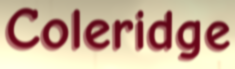
Coleridge